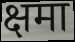
क्षमा